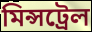
মিন্সট্রেল